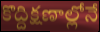
కొద్దిక్షణాల్లోనే